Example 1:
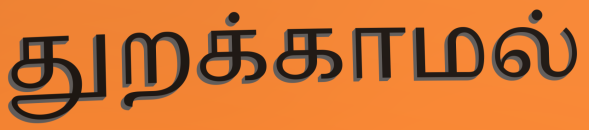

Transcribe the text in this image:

துறக்காமல்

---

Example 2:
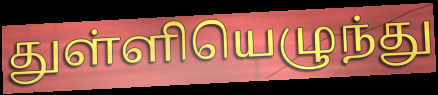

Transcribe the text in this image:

துள்ளியெழுந்து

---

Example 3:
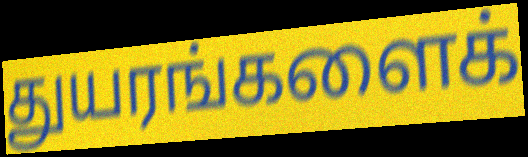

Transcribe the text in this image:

துயரங்களைக்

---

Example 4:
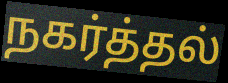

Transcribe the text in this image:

நகர்த்தல்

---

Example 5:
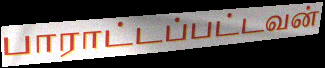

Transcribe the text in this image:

பாராட்டப்பட்டவன்